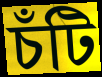
চঁটি